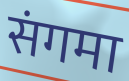
संगमा